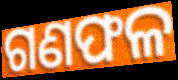
ଗଣଫଳ